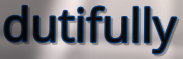
dutifully